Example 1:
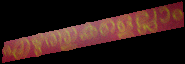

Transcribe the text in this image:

എഴുത്തുകളെല്ലാം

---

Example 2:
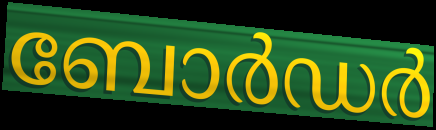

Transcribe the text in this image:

ബോർഡർ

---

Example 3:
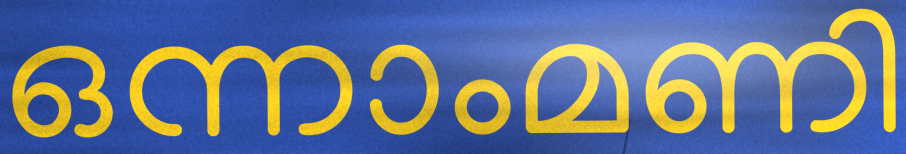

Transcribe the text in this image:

ഒന്നാംമണി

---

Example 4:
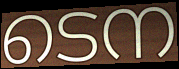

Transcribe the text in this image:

ടെന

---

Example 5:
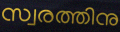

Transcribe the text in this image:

സ്വരത്തിനു